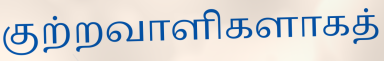
குற்றவாளிகளாகத்